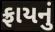
ફ્રાયનું